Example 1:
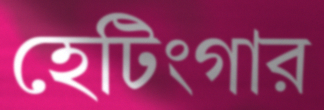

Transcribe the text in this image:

হেটিংগার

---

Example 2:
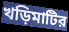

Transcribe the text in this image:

খড়িমাটির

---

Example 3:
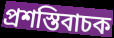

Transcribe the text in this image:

প্রশস্তিবাচক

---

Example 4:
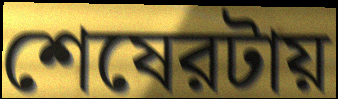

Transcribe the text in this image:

শেষেরটায়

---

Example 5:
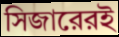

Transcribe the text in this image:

সিজারেরই